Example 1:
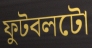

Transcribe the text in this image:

ফুটবলটো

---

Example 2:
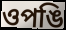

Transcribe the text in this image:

ওপঙি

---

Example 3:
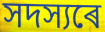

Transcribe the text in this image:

সদস্যৰে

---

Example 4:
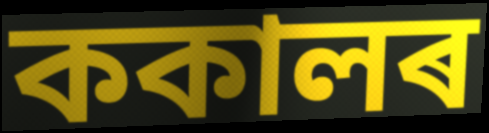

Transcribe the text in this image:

ককালৰ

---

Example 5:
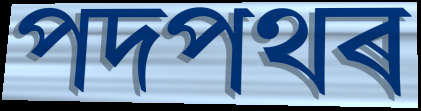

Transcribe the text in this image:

পদপথৰ